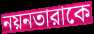
নয়নতারাকে